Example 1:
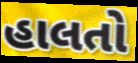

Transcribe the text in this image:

હાલતો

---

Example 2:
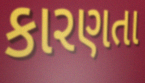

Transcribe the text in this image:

કારણતા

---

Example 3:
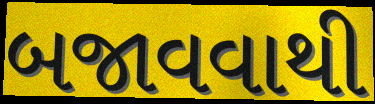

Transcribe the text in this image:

બજાવવાથી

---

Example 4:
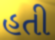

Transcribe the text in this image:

હતી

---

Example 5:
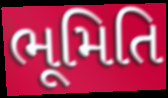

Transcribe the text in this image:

ભૂમિતિ